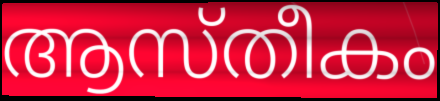
ആസ്തീകം